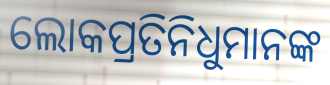
ଲୋକପ୍ରତିନିଧୁମାନଙ୍କ